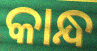
କାନ୍ଧ